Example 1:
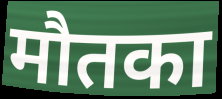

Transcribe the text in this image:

मौतका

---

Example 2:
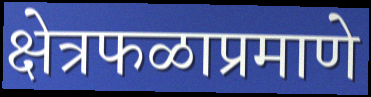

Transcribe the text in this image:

क्षेत्रफळाप्रमाणे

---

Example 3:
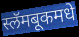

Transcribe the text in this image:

स्लॅमबूकमधे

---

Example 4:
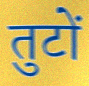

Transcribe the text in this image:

तुटों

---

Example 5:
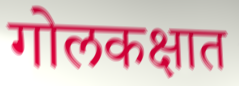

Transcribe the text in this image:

गोलकक्षात